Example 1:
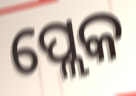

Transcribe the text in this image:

ପ୍ଲେକ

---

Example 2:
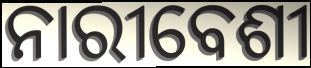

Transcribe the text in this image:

ନାରୀବେଶୀ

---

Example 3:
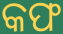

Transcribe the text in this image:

କଫ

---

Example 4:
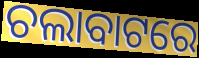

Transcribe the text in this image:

ଚଲାବାଟରେ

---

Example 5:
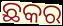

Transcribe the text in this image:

ଛକର